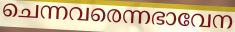
ചെന്നവരെന്നഭാവേന